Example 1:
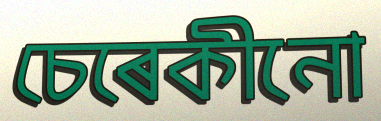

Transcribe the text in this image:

চেৰেকীনো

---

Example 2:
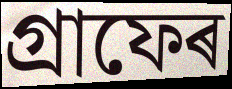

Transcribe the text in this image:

গ্ৰাফেৰ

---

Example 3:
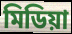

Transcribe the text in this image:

মিডিয়া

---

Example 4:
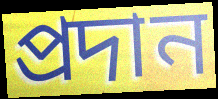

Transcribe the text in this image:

প্ৰদান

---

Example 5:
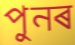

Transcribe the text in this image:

পুনৰ